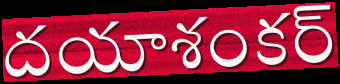
దయాశంకర్